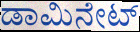
ಡಾಮಿನೇಟ್